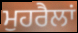
ਮੁਹਰੈਲਾਂ